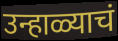
उन्हाळ्याचं